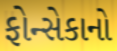
ફોન્સેકાનો